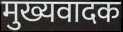
मुख्यवादक